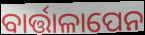
ବାର୍ତ୍ତାଳାପେନ